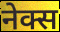
नेक्स